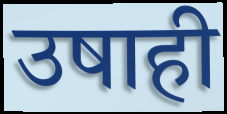
उषाही